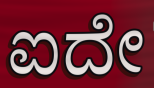
ಐದೇ